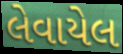
લેવાયેલ